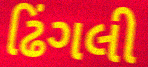
ઢિંગલી